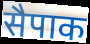
सैपाक